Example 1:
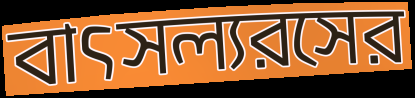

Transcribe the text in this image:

বাৎসল্যরসের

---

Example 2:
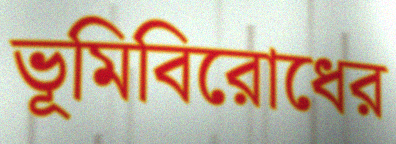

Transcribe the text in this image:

ভূমিবিরোধের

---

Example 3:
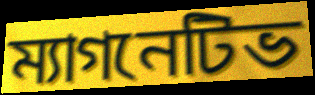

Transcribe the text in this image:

ম্যাগনেটিভ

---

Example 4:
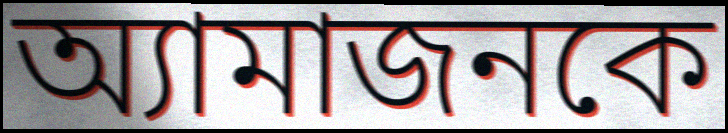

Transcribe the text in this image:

অ্যামাজনকে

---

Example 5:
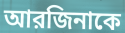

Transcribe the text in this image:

আরজিনাকে